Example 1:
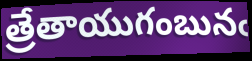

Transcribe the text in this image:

త్రేతాయుగంబునఁ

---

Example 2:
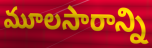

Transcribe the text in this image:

మూలసారాన్ని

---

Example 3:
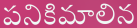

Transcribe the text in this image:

పనికిమాలిన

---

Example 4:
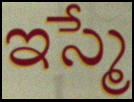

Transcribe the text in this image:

ఇస్మే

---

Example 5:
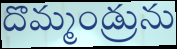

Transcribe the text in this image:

దొమ్మండ్రును